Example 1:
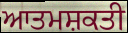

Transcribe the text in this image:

ਆਤਮਸ਼ਕਤੀ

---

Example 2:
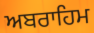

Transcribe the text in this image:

ਅਬਰਾਹਿਮ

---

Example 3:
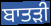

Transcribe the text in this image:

ਬਾਤੜੀ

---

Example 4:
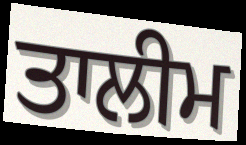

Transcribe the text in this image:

ਤਾਲੀਮ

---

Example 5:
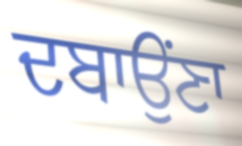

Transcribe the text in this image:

ਦਬਾਉਂਣਾ